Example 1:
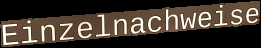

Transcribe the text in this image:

Einzelnachweise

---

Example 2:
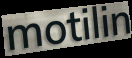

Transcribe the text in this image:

motilin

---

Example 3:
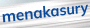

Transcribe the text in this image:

menakasury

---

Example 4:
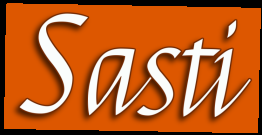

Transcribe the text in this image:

Sasti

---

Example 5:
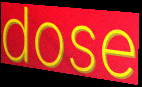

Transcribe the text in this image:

dose